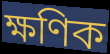
ক্ষণিক